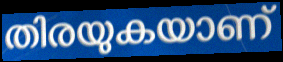
തിരയുകയാണ്